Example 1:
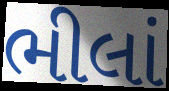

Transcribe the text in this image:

ભીલાં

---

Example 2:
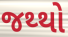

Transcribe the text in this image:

જથ્થો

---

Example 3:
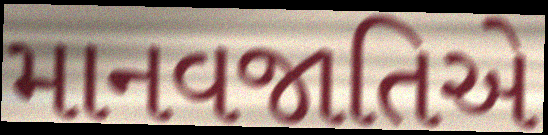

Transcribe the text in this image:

માનવજાતિએ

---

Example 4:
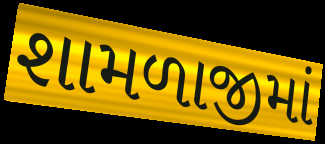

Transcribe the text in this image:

શામળાજીમાં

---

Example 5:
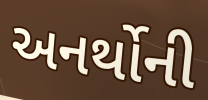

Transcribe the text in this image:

અનર્થોની